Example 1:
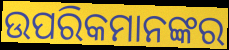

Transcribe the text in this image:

ଉପରିକମାନଙ୍କର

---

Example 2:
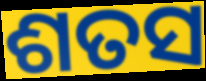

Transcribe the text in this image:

ଶତସ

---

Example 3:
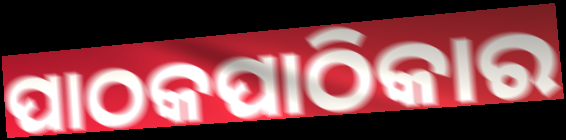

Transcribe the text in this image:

ପାଠକପାଠିକାର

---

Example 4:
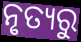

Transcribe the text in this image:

ନୃତ୍ୟରୁ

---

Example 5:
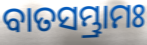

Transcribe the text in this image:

ବାତସମ୍ଭ୍ରାମଃ